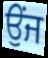
ਉੰਜ